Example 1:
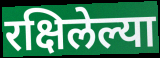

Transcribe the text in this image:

रक्षिलेल्या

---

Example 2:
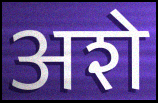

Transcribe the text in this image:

अशे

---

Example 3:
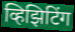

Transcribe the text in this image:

व्हिझिटिंग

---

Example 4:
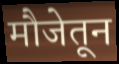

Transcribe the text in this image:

मौजेतून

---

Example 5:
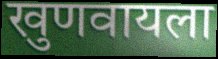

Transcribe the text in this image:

खुणवायला